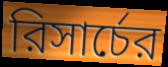
রিসার্চের